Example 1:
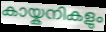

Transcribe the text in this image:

കായ്കനികളും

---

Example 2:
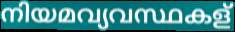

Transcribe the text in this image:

നിയമവ്യവസ്ഥകള്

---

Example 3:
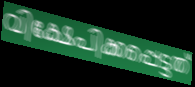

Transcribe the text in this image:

വിക്ഷേപിക്കപ്പെട്ടത്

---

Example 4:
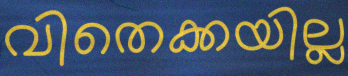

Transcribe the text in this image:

വിതെക്കയില്ല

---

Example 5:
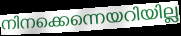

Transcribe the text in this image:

നിനക്കെന്നെയറിയില്ല